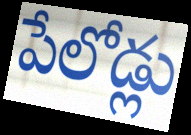
పేలోడ్లు